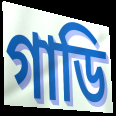
গাডি